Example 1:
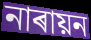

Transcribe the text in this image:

নাৰায়ন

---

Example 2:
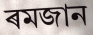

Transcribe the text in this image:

ৰমজান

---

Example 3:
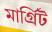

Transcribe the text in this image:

মাৰ্গ্ৰিট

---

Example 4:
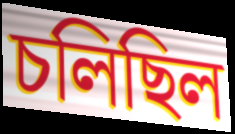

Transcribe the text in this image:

চলিছিল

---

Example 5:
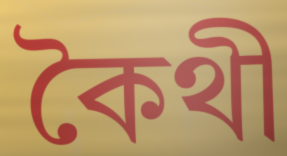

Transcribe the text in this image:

কৈথী